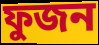
ফুজন